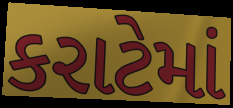
કરાટેમાં